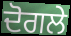
ਦੋਗਲੇ